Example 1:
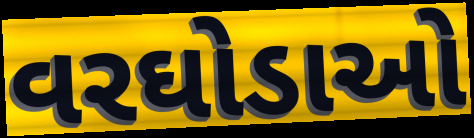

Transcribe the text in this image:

વરઘોડાઓ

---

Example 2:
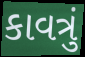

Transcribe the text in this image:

કાવત્રું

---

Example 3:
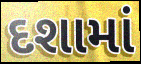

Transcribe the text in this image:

દશામાં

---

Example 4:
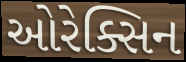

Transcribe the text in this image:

ઓરેક્સિન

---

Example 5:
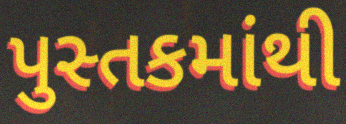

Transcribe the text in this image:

પુસ્તકમાંથી